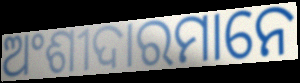
ଅଂଶୀଦାରମାନେ